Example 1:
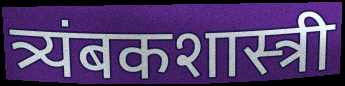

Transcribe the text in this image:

त्र्यंबकशास्त्री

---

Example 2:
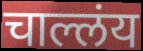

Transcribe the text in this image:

चाल्लंय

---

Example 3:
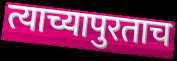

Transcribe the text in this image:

त्याच्यापुरताच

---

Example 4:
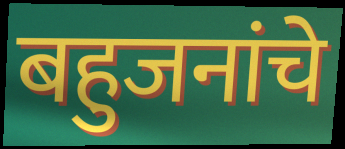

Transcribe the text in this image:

बहुजनांचे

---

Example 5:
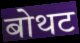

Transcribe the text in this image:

बोथट